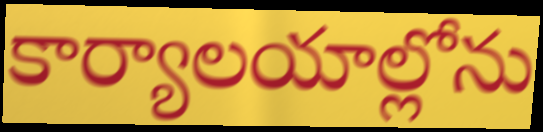
కార్యాలయాల్లోను